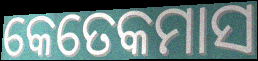
କେତେକମାସ